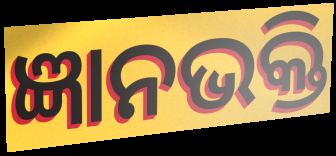
ଜ୍ଞାନଭକ୍ତି